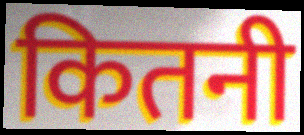
कितनी